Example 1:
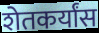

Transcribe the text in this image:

शेतकर्यांस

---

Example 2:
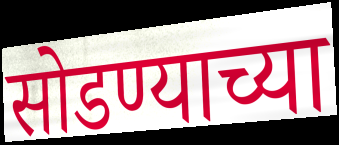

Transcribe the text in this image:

सोडण्याच्या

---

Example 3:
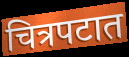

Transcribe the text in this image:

चित्रपटात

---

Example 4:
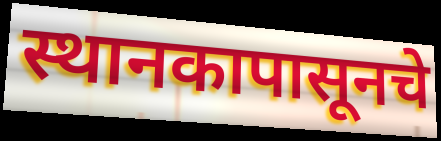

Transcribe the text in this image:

स्थानकापासूनचे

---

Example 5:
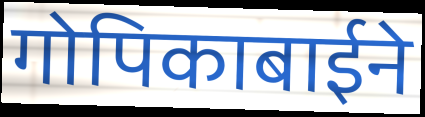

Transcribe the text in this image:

गोपिकाबाईने